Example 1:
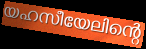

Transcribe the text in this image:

യഹസീയേലിന്റെ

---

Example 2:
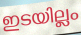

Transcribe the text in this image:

ഇടയില്ലം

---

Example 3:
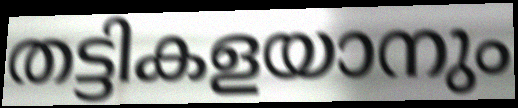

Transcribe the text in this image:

തട്ടികളയാനും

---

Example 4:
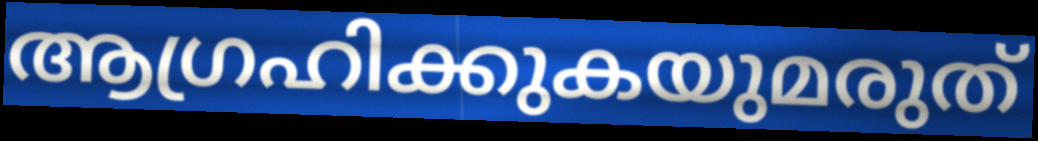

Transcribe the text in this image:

ആഗ്രഹിക്കുകയുമരുത്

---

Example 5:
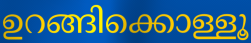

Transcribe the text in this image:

ഉറങ്ങിക്കൊള്ളൂ